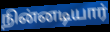
நின்னடியார்